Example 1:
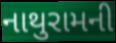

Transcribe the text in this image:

નાથુરામની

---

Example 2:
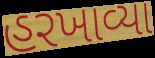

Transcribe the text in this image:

હરખાવ્યા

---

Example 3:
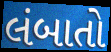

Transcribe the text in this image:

લંબાતો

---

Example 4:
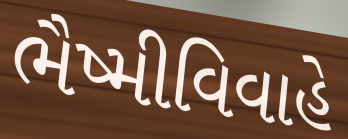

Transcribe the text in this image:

ભૈષ્મીવિવાહે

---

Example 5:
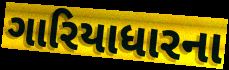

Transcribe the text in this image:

ગારિયાધારના